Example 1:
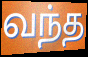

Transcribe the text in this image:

வந்த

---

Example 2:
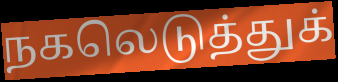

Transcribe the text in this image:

நகலெடுத்துக்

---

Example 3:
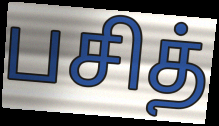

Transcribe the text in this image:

பசித்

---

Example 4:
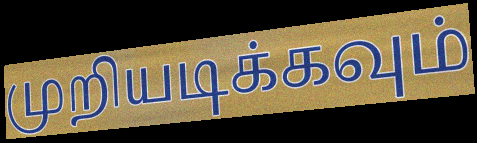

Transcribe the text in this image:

முறியடிக்கவும்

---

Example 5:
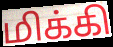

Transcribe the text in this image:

மிக்கி